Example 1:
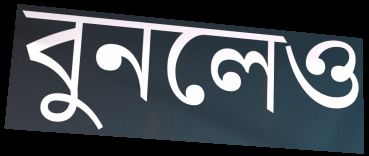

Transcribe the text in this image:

বুনলেও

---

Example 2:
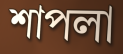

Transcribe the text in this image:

শাপলা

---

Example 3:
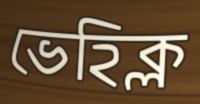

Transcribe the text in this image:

ভেহিক্ল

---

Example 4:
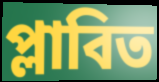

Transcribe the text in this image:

প্লাবিত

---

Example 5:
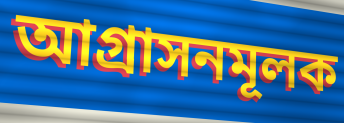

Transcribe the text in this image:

আগ্রাসনমূলক